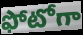
ఫోటోగా